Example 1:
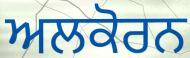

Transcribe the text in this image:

ਅਲਕੋਰਨ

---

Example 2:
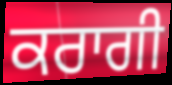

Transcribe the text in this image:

ਕਰਾਗੀ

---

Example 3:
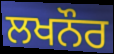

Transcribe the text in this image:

ਲਖਨੌਰ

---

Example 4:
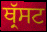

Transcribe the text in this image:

ਥ੍ਰੱਸਟ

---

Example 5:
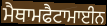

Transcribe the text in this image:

ਮੈਥਾਮਫੈਟਾਮਾਈਨ